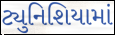
ટ્યુનિશિયામાં